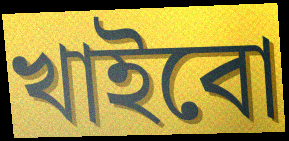
খাইবো